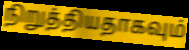
நிறுத்தியதாகவும்